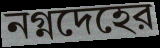
নগ্নদেহের